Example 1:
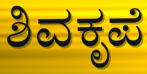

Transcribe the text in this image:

ಶಿವಕೃಪೆ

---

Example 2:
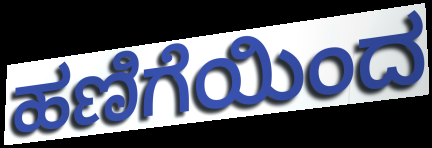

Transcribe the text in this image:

ಹಣಿಗೆಯಿಂದ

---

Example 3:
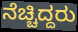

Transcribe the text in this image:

ನೆಚ್ಚಿದ್ದರು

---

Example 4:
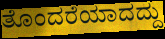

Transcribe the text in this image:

ತೊಂದರೆಯಾದದ್ದು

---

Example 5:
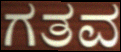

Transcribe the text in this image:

ಗತವ